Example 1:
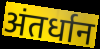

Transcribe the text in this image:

अंतर्धान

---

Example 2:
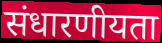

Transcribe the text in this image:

संधारणीयता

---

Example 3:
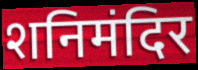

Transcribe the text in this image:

शनिमंदिर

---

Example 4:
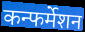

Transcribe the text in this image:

कन्फर्मेशन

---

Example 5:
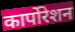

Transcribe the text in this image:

कार्पोरेशन